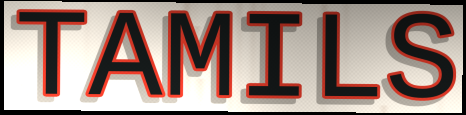
TAMILS